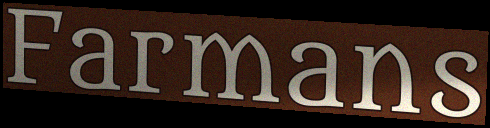
Farmans